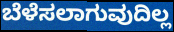
ಬೆಳೆಸಲಾಗುವುದಿಲ್ಲ